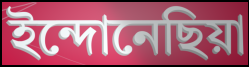
ইন্দোনেছিয়া